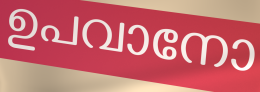
ഉപവാനോ